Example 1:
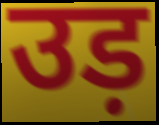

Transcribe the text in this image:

उड़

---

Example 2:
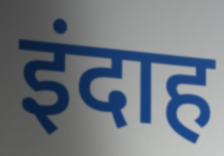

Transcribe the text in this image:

इंदाह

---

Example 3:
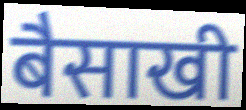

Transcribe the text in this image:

बैसाखी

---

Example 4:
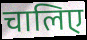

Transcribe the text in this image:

चालिए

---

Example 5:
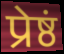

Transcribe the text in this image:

प्रेष्ठं